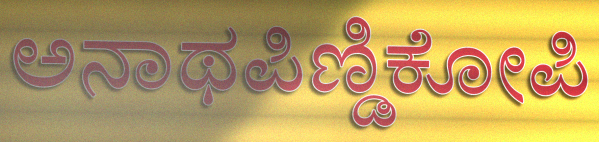
ಅನಾಥಪಿಣ್ಡಿಕೋಪಿ